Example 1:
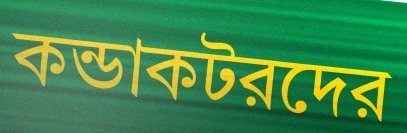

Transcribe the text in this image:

কন্ডাকটরদের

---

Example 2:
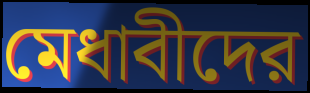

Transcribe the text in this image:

মেধাবীদের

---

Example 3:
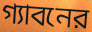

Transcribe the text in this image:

গ্যাবনের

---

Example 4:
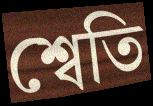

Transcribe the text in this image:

শ্বেতি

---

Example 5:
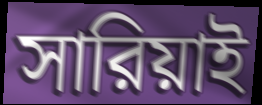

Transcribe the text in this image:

সারিয়াই